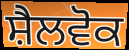
ਸ਼ੈਲਵੋਕ